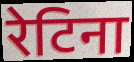
रेटिना